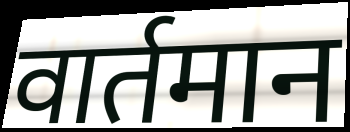
वार्तमान